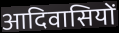
आदिवासियों